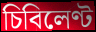
চিবিলেণ্ট